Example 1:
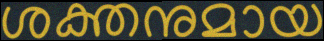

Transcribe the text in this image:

ശക്തനുമായ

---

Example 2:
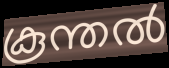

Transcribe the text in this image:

കൂന്തൽ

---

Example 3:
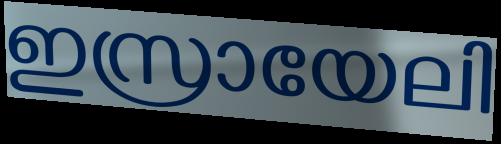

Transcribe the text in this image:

ഇസ്രായേലി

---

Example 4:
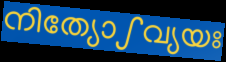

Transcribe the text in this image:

നിത്യോഽവ്യയഃ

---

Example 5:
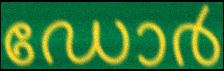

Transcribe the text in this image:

ഡോർ